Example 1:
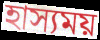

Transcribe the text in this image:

হাস্যময়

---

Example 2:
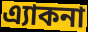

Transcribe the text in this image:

এ্যাকনা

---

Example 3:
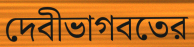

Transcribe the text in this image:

দেবীভাগবতের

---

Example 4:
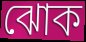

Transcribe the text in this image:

ঝোক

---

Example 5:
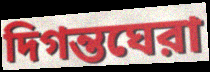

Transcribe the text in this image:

দিগন্তঘেরা